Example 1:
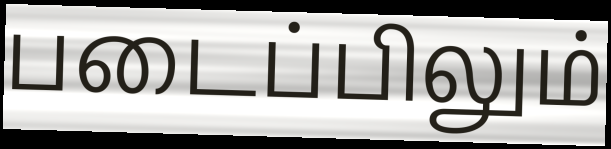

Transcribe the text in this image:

படைப்பிலும்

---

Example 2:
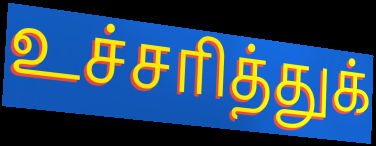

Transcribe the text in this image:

உச்சரித்துக்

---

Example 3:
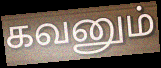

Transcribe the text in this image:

கவனும்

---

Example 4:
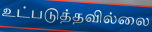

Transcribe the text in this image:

உட்படுத்தவில்லை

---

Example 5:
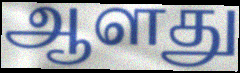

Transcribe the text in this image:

ஆளது